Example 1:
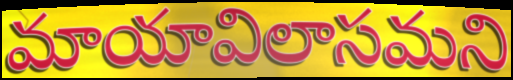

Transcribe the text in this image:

మాయావిలాసమని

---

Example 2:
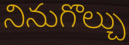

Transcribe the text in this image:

నినుగొల్చు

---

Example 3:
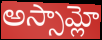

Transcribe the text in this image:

అస్సామ్లో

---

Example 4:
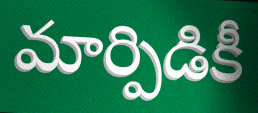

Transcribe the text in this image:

మార్పిడికీ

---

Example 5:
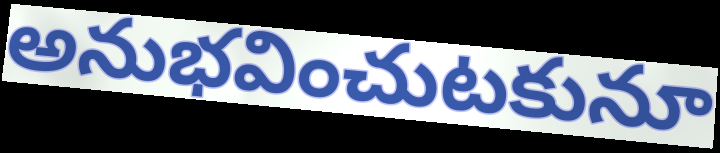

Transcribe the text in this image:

అనుభవించుటకునూ